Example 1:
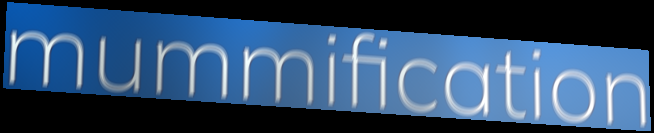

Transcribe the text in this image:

mummification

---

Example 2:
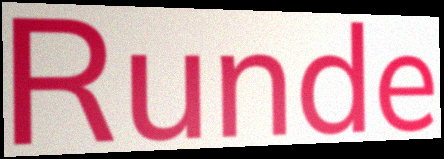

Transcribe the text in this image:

Runde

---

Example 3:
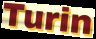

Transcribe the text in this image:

Turin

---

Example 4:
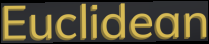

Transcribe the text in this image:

Euclidean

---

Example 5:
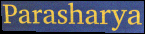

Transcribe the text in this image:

Parasharya